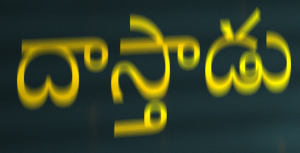
దాస్తాడు